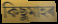
কিছুমাহৰ